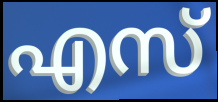
എസ്